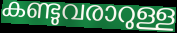
കണ്ടുവരാറുള്ള